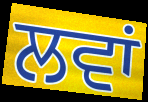
ਲਵਾਂ